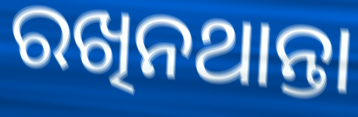
ରଖିନଥାନ୍ତା